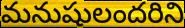
మనుషులందరిని